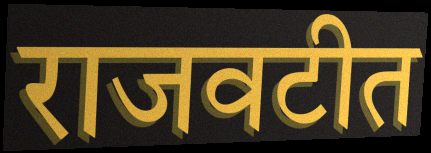
राजवटीत